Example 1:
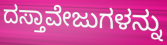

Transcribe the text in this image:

ದಸ್ತಾವೇಜುಗಳನ್ನು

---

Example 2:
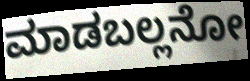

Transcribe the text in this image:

ಮಾಡಬಲ್ಲನೋ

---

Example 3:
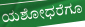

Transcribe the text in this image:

ಯಶೋಧರೆಗೂ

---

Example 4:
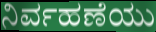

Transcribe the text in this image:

ನಿರ್ವಹಣೆಯು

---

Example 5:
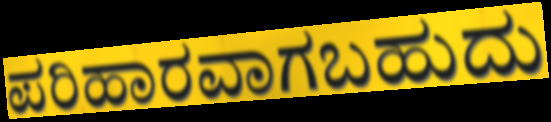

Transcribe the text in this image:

ಪರಿಹಾರವಾಗಬಹುದು